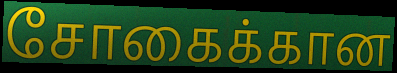
சோகைக்கான